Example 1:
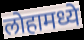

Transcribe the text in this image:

लोहामध्ये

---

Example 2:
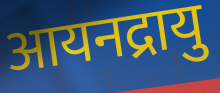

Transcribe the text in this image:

आयनद्रायु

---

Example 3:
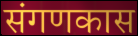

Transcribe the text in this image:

संगणकास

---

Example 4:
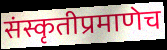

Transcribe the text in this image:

संस्कृतीप्रमाणेच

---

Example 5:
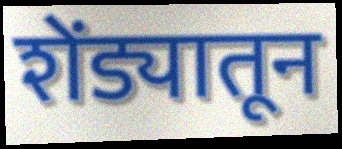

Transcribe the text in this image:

शेंड्यातून